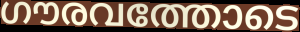
ഗൗരവത്തോടെ